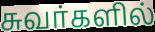
சுவர்களில்